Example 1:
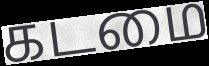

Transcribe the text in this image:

கடமை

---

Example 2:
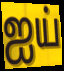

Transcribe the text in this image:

ஐய்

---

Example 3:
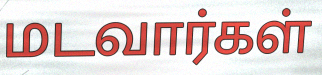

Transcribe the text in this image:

மடவார்கள்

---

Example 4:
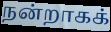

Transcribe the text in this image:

நன்றாகக்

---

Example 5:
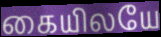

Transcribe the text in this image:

கையிலயே